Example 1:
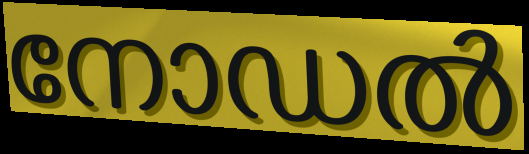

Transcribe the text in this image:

നോഡൽ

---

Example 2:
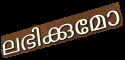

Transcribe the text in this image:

ലഭിക്കുമോ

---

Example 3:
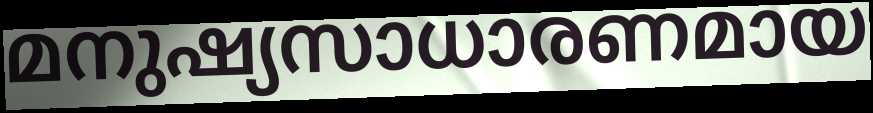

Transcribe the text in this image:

മനുഷ്യസാധാരണമായ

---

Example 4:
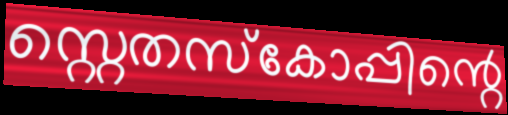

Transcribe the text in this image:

സ്റ്റെതസ്കോപ്പിന്റെ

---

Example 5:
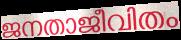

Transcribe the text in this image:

ജനതാജീവിതം